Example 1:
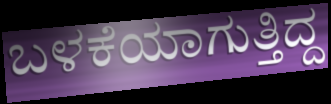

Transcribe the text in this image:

ಬಳಕೆಯಾಗುತ್ತಿದ್ದ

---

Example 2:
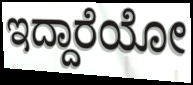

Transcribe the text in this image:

ಇದ್ದಾರೆಯೋ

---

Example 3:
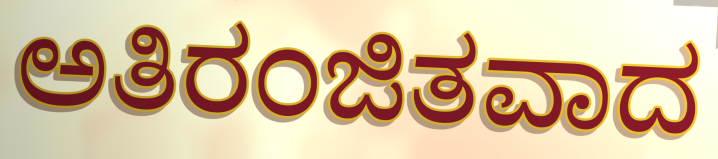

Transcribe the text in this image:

ಅತಿರಂಜಿತವಾದ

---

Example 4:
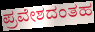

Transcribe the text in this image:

ಪ್ರವೇಶದಂತಹ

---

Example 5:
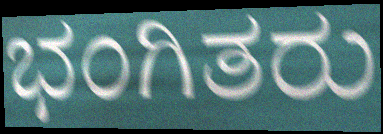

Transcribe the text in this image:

ಭಂಗಿತರು